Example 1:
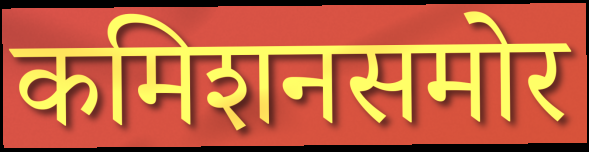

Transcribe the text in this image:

कमिशनसमोर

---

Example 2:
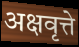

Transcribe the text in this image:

अक्षवृत्ते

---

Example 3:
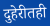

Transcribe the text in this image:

दुहेरीतही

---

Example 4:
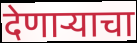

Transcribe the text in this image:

देणार्‍याचा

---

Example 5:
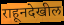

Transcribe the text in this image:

राहूनदेखील